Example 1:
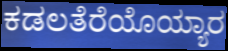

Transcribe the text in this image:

ಕಡಲತೆರೆಯೊಯ್ಯಾರ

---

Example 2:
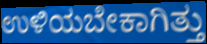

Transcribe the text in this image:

ಉಳಿಯಬೇಕಾಗಿತ್ತು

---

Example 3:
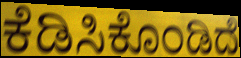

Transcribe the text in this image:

ಕೆಡಿಸಿಕೊಂಡಿದೆ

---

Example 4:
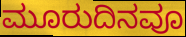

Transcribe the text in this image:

ಮೂರುದಿನವೂ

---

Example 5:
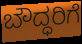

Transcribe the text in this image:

ಬೌದ್ಧರಿಗೆ